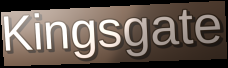
Kingsgate